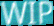
WIP